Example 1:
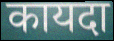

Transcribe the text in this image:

कायदा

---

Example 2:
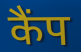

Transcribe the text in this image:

कैंप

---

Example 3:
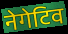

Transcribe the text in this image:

नेगेटिव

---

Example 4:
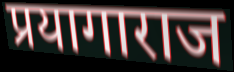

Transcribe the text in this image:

प्रयागाराज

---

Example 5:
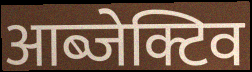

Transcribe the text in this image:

आब्जेक्टिव